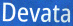
Devata